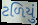
ટળિયું